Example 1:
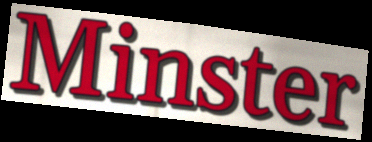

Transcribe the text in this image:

Minster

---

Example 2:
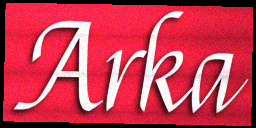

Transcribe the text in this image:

Arka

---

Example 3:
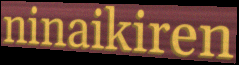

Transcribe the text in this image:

ninaikiren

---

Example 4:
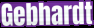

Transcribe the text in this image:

Gebhardt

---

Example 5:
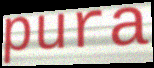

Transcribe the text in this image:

pura